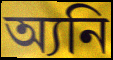
অ্যনি